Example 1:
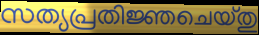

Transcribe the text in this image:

സത്യപ്രതിജ്ഞചെയ്തു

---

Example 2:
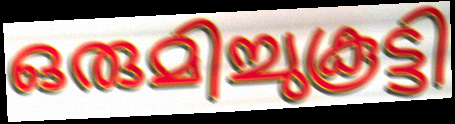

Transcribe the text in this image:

ഒരുമിച്ചുകൂട്ടി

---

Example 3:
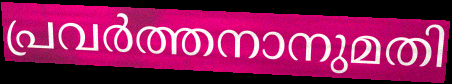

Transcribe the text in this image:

പ്രവർത്തനാനുമതി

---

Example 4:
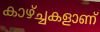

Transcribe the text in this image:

കാഴ്ച്ചകളാണ്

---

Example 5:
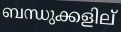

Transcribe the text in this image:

ബന്ധുക്കളില്